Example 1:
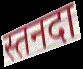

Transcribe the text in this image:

स्तनदा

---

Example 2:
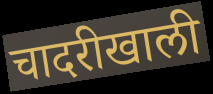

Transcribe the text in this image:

चादरीखाली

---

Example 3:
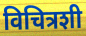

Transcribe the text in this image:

विचित्रशी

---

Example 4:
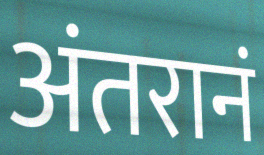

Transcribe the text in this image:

अंतरानं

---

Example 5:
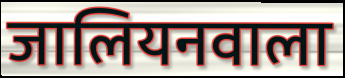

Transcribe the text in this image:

जालियनवाला